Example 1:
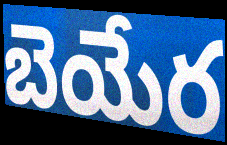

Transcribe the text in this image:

బెయేర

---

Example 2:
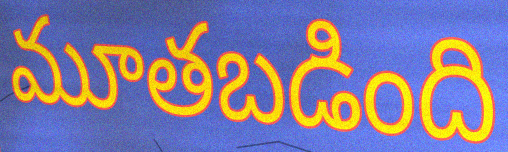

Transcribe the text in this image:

మూతబడింది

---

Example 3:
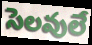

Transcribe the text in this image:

సెలవులే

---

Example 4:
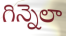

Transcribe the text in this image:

గిన్నెలా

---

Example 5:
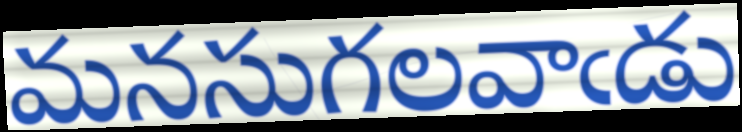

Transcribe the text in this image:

మనసుగలవాఁడు